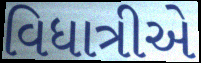
વિધાત્રીએ